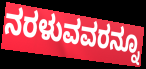
ನರಳುವವರನ್ನೂ